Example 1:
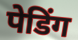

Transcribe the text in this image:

पेडिंग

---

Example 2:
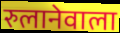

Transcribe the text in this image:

रुलानेवाला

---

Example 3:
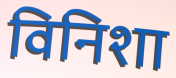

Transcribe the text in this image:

विनिशा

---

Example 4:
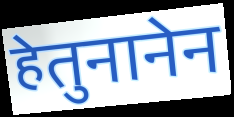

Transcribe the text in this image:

हेतुनानेन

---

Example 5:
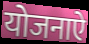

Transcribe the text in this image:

योजनाऐ